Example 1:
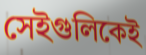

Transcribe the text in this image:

সেইগুলিকেই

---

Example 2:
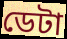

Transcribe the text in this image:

ডেটা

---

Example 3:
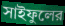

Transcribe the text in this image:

সাইফুলের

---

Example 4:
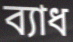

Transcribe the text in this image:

ব্যাধ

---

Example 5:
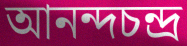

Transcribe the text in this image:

আনন্দচন্দ্র